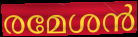
രമേശൻ